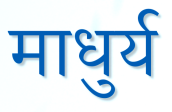
माधुर्य